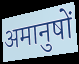
अमानुषों